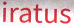
iratus